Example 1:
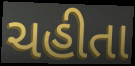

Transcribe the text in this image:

ચહીતા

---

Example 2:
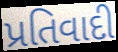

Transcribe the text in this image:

પ્રતિવાદી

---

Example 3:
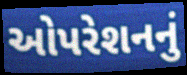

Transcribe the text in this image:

ઓપરેશનનું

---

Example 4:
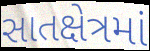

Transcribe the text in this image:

સાતક્ષેત્રમાં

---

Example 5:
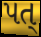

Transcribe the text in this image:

પત્